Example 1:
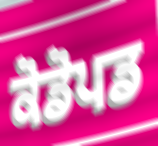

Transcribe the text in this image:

ਕੋਡੋਪਡ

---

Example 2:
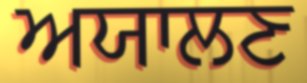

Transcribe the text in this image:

ਅਯਾਲਣ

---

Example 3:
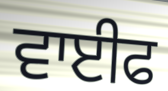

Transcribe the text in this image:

ਵਾਈਫ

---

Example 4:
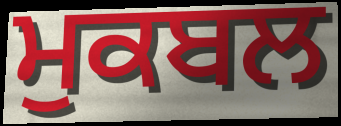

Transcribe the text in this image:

ਮੁਕਬਲ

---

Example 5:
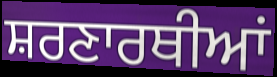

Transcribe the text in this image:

ਸ਼ਰਣਾਰਥੀਆਂ